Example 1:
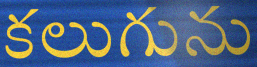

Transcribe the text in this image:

కలుగును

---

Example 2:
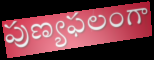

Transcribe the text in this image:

పుణ్యఫలంగా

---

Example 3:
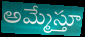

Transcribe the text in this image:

అమ్మేస్తూ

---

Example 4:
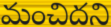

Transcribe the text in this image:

మంచిదని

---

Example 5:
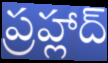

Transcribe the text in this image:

ప్రహ్లాద్